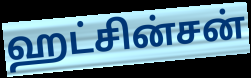
ஹட்சின்சன்